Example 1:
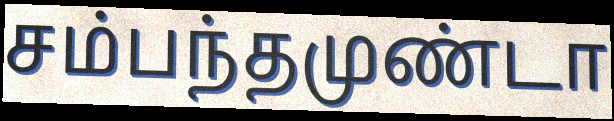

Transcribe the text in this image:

சம்பந்தமுண்டா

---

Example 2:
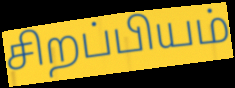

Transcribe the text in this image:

சிறப்பியம்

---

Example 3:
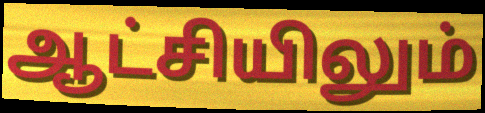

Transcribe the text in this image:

ஆட்சியிலும்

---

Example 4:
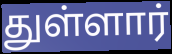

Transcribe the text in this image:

துள்ளார்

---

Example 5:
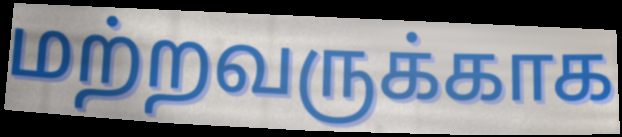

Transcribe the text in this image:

மற்றவருக்காக